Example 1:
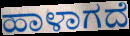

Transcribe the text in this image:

ಹಾಳಾಗದೆ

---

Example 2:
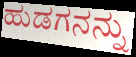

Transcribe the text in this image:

ಹುಡಗನನ್ನು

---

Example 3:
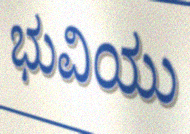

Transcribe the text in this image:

ಭುವಿಯು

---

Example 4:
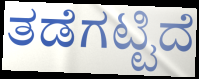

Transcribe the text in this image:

ತಡೆಗಟ್ಟಿದೆ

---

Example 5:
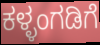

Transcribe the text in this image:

ಕಳ್ಳಂಗಡಿಗೆ